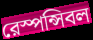
রেস্পন্সিবল